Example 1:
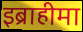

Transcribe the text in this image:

इब्राहीमा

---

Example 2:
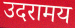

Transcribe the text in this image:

उदरामय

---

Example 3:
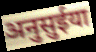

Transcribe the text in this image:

अनुसुईया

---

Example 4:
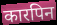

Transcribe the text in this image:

कारपिन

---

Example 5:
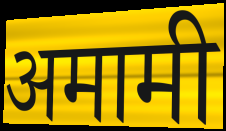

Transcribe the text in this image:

अमामी